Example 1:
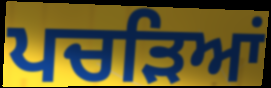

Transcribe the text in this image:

ਪਚੜਿਆਂ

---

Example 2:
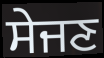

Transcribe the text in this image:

ਸੇਜਣ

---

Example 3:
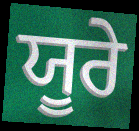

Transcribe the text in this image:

ਯੂਰੇ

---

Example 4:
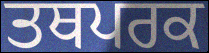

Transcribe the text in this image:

ਤਥਪਰਕ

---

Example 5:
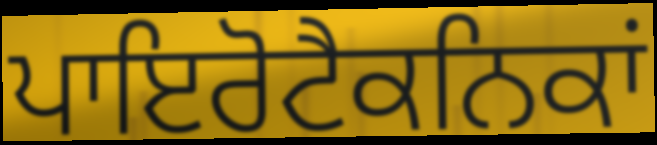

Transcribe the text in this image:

ਪਾਇਰੋਟੈਕਨਿਕਾਂ